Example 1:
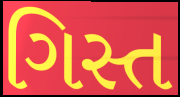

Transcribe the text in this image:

ગિસ્ત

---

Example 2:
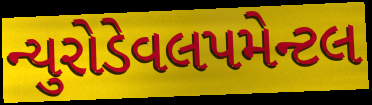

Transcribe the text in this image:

ન્યુરોડેવલપમેન્ટલ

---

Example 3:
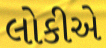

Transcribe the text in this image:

લોકીએ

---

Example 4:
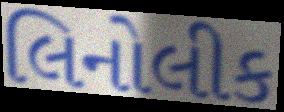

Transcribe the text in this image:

લિનોલીક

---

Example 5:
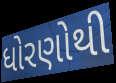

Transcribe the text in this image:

ધોરણોથી